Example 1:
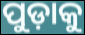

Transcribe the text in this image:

ପୁଡ଼ାକୁ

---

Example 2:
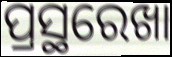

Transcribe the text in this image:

ପ୍ରସ୍ଥରେଖା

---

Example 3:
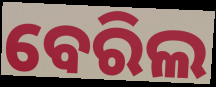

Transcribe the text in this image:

ବେରିଲ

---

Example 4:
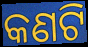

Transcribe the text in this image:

କଣଟି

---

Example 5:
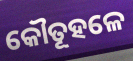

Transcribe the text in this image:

କୌତୂହଳେ